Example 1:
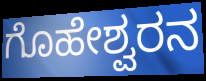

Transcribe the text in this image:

ಗೊಹೇಶ್ವರನ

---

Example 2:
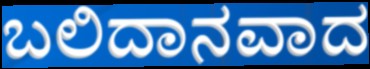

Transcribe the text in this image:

ಬಲಿದಾನವಾದ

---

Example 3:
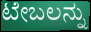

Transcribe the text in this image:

ಟೇಬಲನ್ನು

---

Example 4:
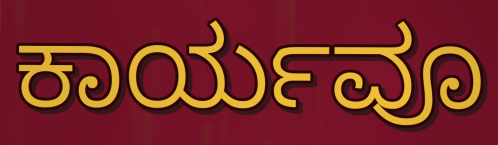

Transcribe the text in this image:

ಕಾರ್ಯವೂ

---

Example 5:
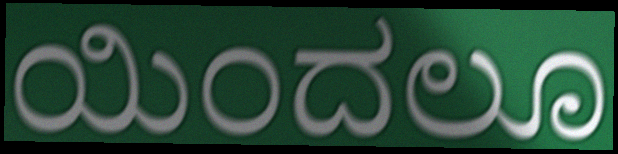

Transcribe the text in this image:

ಯಿಂದಲೂ